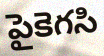
పైకెగసి